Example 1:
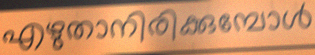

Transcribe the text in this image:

എഴുതാനിരിക്കുമ്പോൾ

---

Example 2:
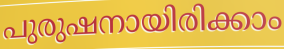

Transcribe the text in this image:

പുരുഷനായിരിക്കാം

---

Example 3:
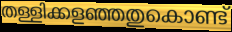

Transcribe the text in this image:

തള്ളിക്കളഞ്ഞതുകൊണ്ട്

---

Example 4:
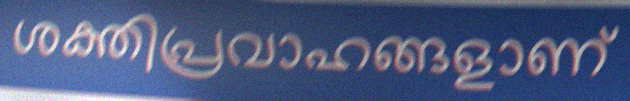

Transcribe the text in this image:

ശക്തിപ്രവാഹങ്ങളാണ്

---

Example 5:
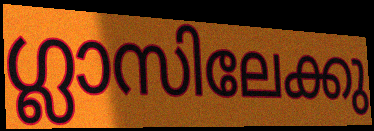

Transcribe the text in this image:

ഗ്ലാസിലേക്കു